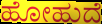
ಹೋಹುದೆ